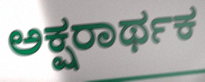
ಅಕ್ಷರಾರ್ಥಕ